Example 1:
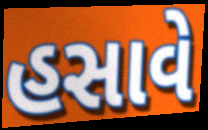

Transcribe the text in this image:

હસાવે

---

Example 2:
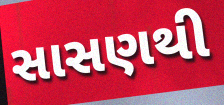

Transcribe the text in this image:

સાસણથી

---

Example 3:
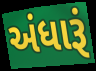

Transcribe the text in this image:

અંધારૂં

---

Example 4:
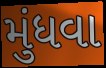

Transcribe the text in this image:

મુંધવા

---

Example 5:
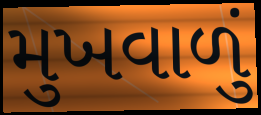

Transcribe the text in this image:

મુખવાળું